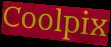
Coolpix